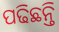
ପଢିଛନ୍ତି